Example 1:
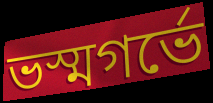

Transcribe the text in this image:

ভস্মগর্ভে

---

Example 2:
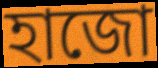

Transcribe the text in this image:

হাজো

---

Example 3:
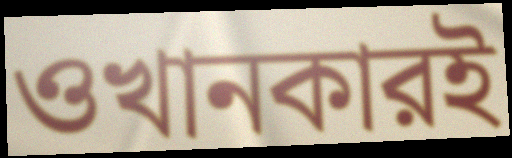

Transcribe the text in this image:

ওখানকারই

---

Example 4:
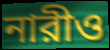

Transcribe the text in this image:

নারীও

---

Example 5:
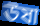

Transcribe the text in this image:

ঊষা